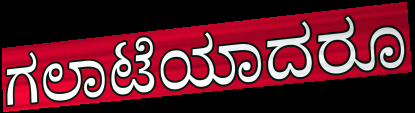
ಗಲಾಟೆಯಾದರೂ